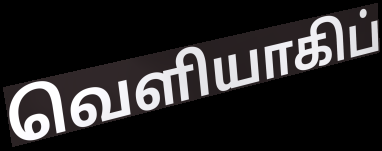
வெளியாகிப்